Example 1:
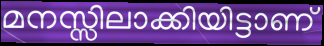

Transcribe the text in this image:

മനസ്സിലാക്കിയിട്ടാണ്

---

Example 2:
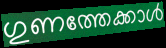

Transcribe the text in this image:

ഗുണത്തേക്കാൾ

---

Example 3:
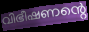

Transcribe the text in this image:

വിഭീഷണന്റെ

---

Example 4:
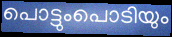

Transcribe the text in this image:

പൊട്ടുംപൊടിയും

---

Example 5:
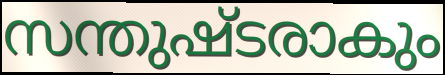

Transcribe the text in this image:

സന്തുഷ്ടരാകും